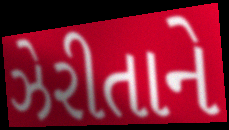
ઝેરીતાને